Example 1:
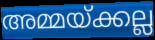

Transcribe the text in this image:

അമ്മയ്ക്കല്ല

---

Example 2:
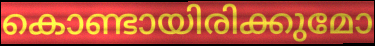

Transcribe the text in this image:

കൊണ്ടായിരിക്കുമോ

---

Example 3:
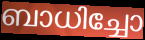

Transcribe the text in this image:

ബാധിച്ചോ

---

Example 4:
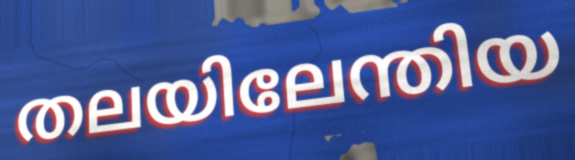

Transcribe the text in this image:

തലയിലേന്തിയ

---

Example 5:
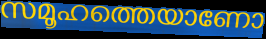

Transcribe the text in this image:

സമൂഹത്തെയാണോ